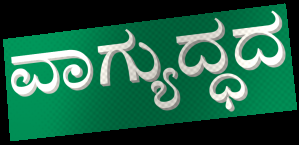
ವಾಗ್ಯುದ್ಧದ